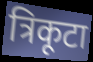
त्रिकूटा